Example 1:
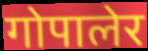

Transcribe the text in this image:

गोपालेर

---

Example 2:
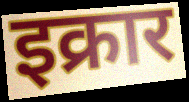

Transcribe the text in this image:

इक्रार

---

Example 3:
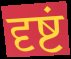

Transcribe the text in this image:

दृष्टं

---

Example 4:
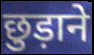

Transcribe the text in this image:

छुड़ाने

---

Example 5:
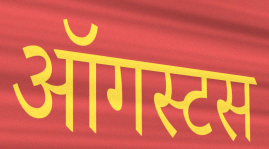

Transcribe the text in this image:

ऑगस्टस